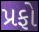
પ્રફો